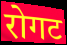
रोगट